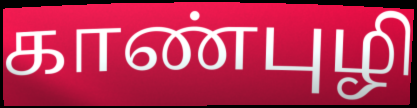
காண்புழி